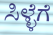
ಸಿಳ್ಳೆಗೆ